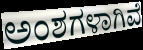
ಅಂಶಗಳಾಗಿವೆ